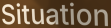
Situation